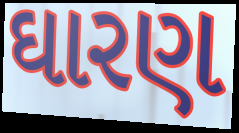
ઘારણ